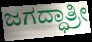
ಜಗದ್ಧಾತ್ರೀ